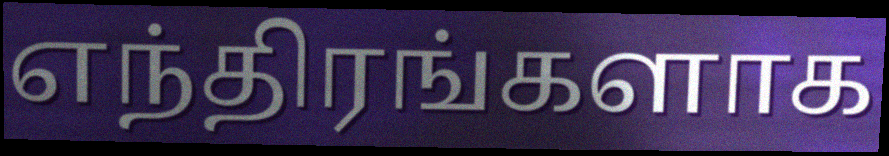
எந்திரங்களாக